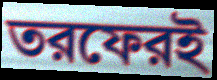
তরফেরই